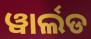
ୱାର୍ଲଡ